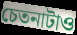
চেতনাটাও